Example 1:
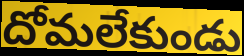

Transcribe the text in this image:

దోమలేకుండు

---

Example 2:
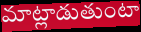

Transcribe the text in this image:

మాట్లాడుతుంటా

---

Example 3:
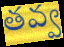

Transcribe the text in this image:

తవ్వ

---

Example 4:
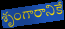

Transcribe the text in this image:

శృంగారానికే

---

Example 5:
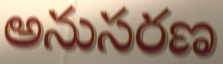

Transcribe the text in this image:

అనుసరణ